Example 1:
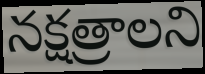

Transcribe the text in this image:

నక్షత్రాలని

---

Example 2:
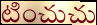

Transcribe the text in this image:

టించుచు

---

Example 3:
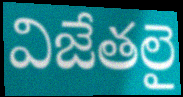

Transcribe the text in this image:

విజేతలై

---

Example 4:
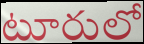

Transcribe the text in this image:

టూరులో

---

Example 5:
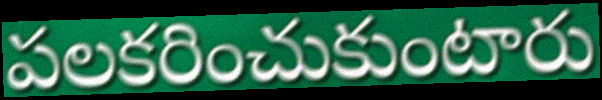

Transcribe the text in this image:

పలకరించుకుంటారు